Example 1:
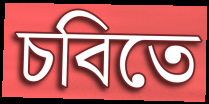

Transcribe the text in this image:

চবিতে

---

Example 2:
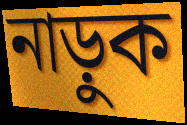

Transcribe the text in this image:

নাড়ুক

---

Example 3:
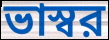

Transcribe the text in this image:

ভাস্বর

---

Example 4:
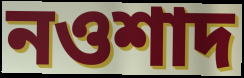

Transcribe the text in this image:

নওশাদ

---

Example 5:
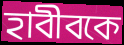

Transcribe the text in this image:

হাবীবকে